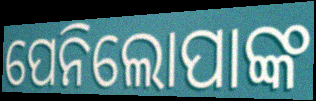
ପେନିଲୋପାଙ୍କ